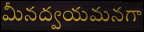
మీనద్వయమనగా